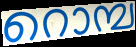
റൊമ്പ